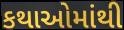
કથાઓમાંથી